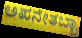
ಅಪನೇತಬ್ಬಾ